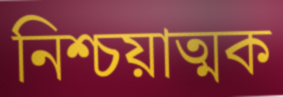
নিশ্চয়াত্মক